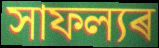
সাফল্যৰ